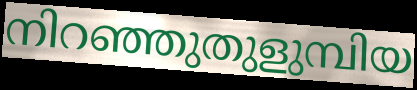
നിറഞ്ഞുതുളുമ്പിയ